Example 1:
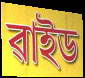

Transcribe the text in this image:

ৱাইড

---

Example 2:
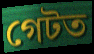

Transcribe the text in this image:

গেটত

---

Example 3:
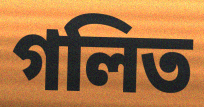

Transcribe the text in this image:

গলিত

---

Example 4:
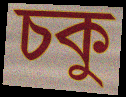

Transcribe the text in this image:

চকু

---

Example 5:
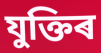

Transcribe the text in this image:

যুক্তিৰ